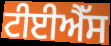
ਟੀਈਐੱਸ